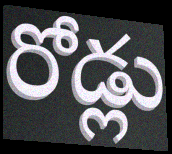
రోడ్లు